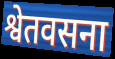
श्वेतवसना